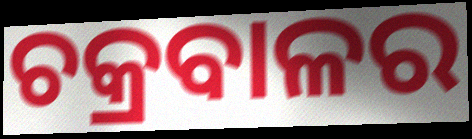
ଚକ୍ରବାଳର